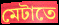
মেটাতে